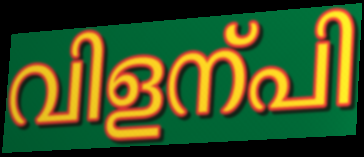
വിളന്പി